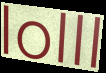
lolll